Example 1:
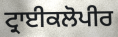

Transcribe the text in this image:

ਟ੍ਰਾਈਕਲੋਪੀਰ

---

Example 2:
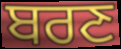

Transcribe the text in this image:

ਬਰਣ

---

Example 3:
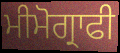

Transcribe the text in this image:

ਮੀਮੋਗ੍ਰਾਫੀ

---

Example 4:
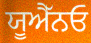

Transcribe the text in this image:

ਯੂਐੱਨਓ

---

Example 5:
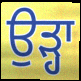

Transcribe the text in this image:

ਉੜ੍ਹਾ